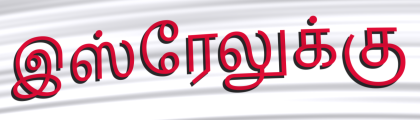
இஸ்ரேலுக்கு